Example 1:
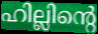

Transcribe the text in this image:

ഹില്ലിന്റെ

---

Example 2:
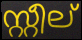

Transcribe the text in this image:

സ്റ്റീല്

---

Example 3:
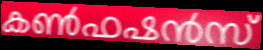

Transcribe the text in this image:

കൺഫഷൻസ്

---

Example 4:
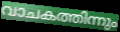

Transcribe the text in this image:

വാചകത്തിന്നും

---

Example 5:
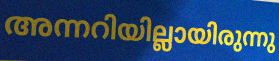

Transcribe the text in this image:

അന്നറിയില്ലായിരുന്നു